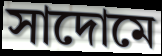
সাদোমে